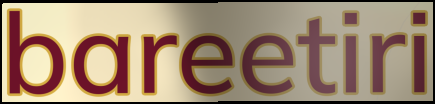
bareetiri